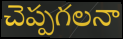
చెప్పగలనా